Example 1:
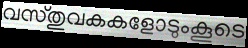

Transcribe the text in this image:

വസ്തുവകകളോടുംകൂടെ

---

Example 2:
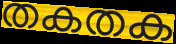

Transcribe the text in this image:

തകതക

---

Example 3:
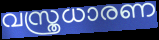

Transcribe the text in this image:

വസ്ത്രധാരണ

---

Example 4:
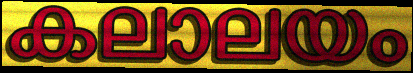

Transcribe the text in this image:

കലാലയം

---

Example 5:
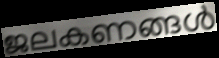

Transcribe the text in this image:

ജലകണങ്ങൾ